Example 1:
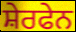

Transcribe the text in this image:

ਸ਼ੇਰਫੇਨ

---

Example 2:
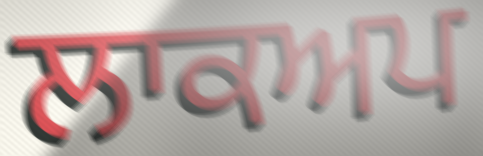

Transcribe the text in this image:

ਲਾਕਅਪ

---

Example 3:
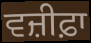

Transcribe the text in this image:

ਵਜ਼ੀਫ਼ਾ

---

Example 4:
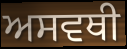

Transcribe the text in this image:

ਅਸਵਥੀ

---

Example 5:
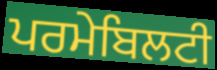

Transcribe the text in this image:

ਪਰਮੇਬਿਲਟੀ